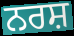
ਨਰਸ਼